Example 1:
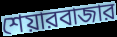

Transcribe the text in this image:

শেয়ারবাজার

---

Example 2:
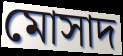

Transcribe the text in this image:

মোসাদ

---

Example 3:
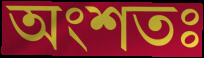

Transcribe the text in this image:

অংশতঃ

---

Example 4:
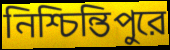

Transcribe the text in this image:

নিশ্চিন্তিপুরে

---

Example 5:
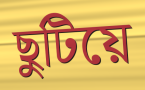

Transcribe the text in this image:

ছুটিয়ে